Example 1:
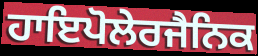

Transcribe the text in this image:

ਹਾਇਪੋਲੇਰਜੈਨਿਕ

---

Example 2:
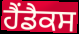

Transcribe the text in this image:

ਹੈਂਡੈਕਸ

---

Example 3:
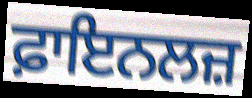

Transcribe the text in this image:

ਫ਼ਾਇਨਲਜ਼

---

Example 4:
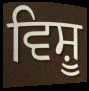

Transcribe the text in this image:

ਵਿਸ਼ੂ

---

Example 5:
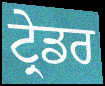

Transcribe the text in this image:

ਟ੍ਰੇਡਰ